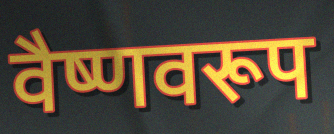
वैष्णवरूप